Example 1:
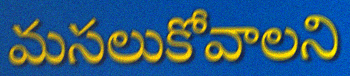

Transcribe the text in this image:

మసలుకోవాలని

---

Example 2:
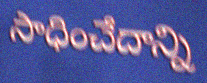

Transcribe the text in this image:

సాధించేదాన్ని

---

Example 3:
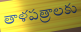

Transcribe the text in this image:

తాళపత్రాలకు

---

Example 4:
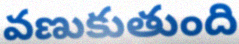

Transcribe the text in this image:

వణుకుతుంది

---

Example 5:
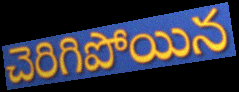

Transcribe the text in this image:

చెరిగిపోయిన